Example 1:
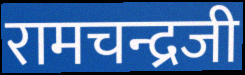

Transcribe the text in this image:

रामचन्द्रजी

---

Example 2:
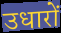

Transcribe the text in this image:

उधारों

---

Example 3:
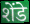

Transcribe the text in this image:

शेंडे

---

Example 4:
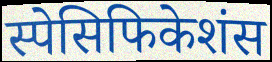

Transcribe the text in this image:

स्पेसिफिकेशंस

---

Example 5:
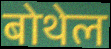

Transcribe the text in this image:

बोथेल